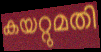
കയറ്റുമതി